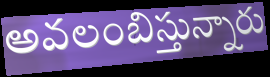
అవలంబిస్తున్నారు